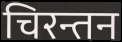
चिरन्तन